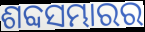
ଶବ୍ଦସମ୍ଭାରର